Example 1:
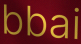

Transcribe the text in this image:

bbai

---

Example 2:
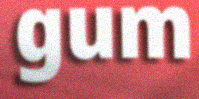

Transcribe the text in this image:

gum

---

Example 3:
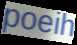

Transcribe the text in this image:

poeih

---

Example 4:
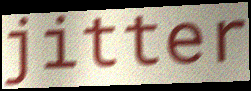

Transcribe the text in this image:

jitter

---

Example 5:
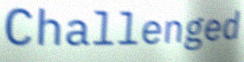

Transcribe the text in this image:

Challenged